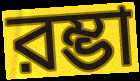
রম্ভা